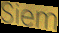
Siem